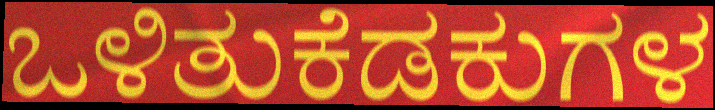
ಒಳಿತುಕೆಡಕುಗಳ